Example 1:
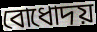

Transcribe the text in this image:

বোধোদয়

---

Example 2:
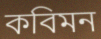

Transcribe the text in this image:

কবিমন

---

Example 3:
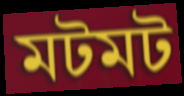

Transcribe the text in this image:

মটমট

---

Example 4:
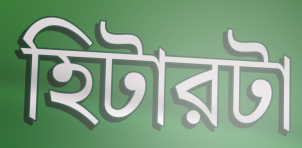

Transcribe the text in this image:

হিটারটা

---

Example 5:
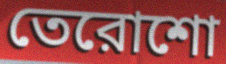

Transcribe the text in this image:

তেরোশো